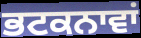
ਭਟਕਨਾਵਾਂ